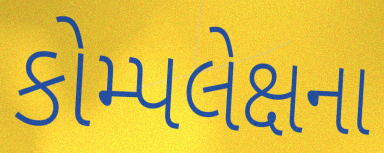
કોમ્પલેક્ષના